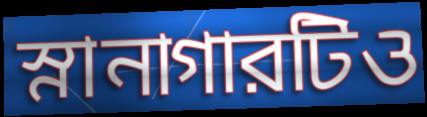
স্নানাগারটিও